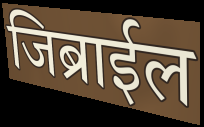
जिब्राईल